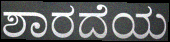
ಶಾರದೆಯ